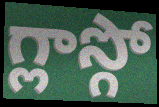
గ్లాస్గో